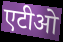
एटीओ